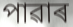
পাৱাৰ